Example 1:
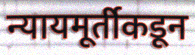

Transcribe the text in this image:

न्यायमूर्तीकडून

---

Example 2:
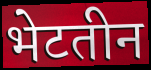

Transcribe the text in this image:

भेटतीन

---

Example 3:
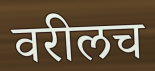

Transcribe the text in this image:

वरीलच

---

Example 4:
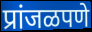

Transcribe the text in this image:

प्रांजळपणे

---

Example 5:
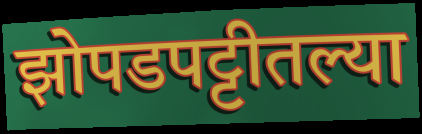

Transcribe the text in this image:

झोपडपट्टीतल्या